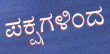
ಪಕ್ಷಗಳಿಂದ